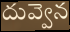
దువ్వెన